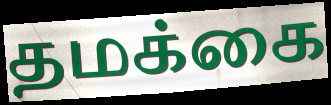
தமக்கை